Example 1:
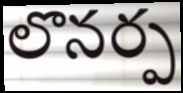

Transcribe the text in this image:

లొనర్ప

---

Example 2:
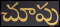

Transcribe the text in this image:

చూపు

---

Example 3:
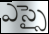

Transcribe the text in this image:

ఎస్సై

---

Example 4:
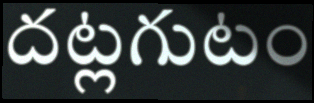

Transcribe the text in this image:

దట్లగుటం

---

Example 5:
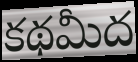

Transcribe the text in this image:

కథమీద